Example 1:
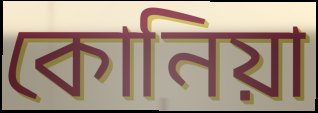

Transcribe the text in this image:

কোনিয়া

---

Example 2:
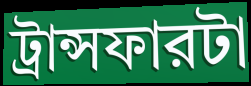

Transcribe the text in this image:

ট্রান্সফারটা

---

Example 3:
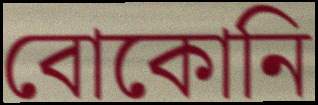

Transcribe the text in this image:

বোকোনি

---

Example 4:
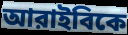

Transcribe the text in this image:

আরাইবিকে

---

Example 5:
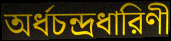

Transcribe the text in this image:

অর্ধচন্দ্রধারিণী